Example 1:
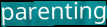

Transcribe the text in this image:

parenting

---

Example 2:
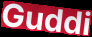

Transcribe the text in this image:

Guddi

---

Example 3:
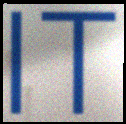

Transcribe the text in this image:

IT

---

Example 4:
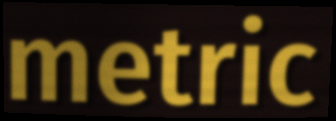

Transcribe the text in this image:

metric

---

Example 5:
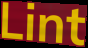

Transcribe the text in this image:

Lint